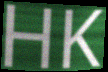
HK